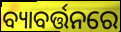
ବ୍ୟାବର୍ତ୍ତନରେ